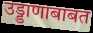
उड्डाणाबाबत